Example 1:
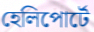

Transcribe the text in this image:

হেলিপোর্টে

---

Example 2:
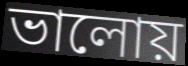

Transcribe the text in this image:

ভালোয়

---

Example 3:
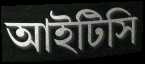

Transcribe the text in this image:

আইটিসি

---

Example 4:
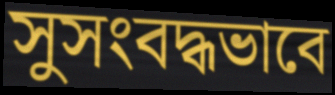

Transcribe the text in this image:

সুসংবদ্ধভাবে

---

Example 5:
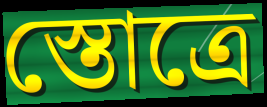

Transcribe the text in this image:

স্তোত্রে